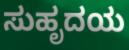
ಸುಹೃದಯ